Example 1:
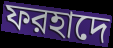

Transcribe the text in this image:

ফরহাদে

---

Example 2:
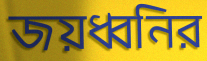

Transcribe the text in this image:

জয়ধ্বনির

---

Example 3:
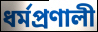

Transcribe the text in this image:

ধর্মপ্রণালী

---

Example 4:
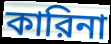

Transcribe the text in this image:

কারিনা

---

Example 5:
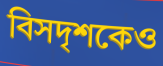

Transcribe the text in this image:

বিসদৃশকেও